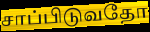
சாப்பிடுவதோ